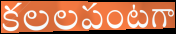
కలలపంటగా